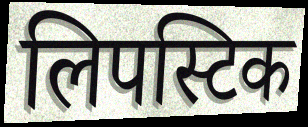
लिपस्टिक